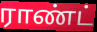
ராண்ட்